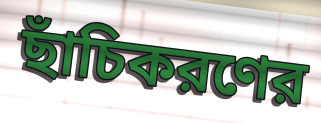
ছাঁচিকরণের